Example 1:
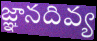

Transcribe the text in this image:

జ్ఞానదివ్య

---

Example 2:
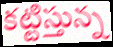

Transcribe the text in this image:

కట్టిస్తున్న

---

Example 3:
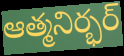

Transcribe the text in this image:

ఆత్మనిర్భర్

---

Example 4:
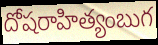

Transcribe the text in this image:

దోషరాహిత్యంబుగ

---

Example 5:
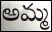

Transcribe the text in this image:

అమ్మ